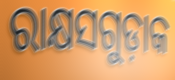
ରାକ୍ଷସଗୁଡ଼ାକ